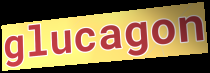
glucagon